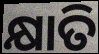
କ୍ଷାତି